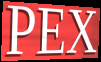
PEX